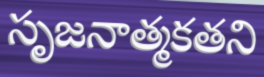
సృజనాత్మకతని